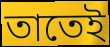
তাতেই